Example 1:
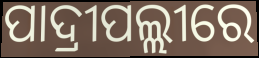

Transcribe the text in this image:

ପାଦ୍ରୀପଲ୍ଲୀରେ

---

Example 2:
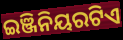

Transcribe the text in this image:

ଇଞ୍ଜିନିୟରଟିଏ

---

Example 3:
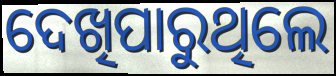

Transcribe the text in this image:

ଦେଖିପାରୁଥିଲେ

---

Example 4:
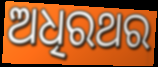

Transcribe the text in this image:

ଅଧିରଥର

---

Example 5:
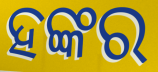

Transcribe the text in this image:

ହଙ୍କର